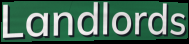
Landlords